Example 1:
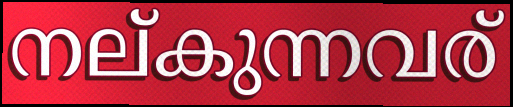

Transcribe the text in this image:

നല്കുന്നവര്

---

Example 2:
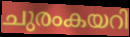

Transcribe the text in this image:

ചുരംകയറി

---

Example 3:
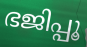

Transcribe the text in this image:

ഭജിപ്പൂ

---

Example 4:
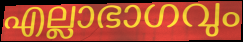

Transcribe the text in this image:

എല്ലാഭാഗവും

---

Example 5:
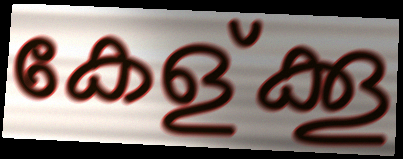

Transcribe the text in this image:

കേള്ക്കൂ